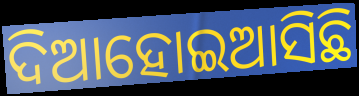
ଦିଆହୋଇଆସିଛି